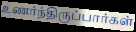
உணர்ந்திருப்பார்கள்